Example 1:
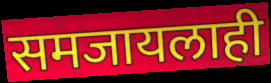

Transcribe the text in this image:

समजायलाही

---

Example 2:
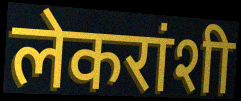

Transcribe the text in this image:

लेकरांशी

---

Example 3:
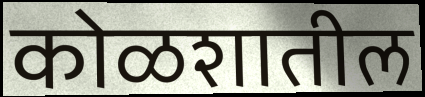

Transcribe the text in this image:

कोळशातील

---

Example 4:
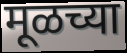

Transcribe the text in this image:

मूळच्या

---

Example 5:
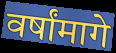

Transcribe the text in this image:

वर्षांमागे